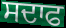
ਸਦਾਫ